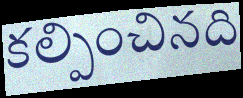
కల్పించినది